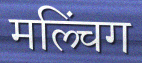
मल्चिंग